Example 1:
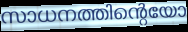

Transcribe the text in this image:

സാധനത്തിന്റെയോ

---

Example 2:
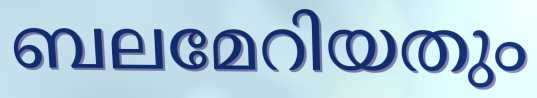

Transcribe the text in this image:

ബലമേറിയതും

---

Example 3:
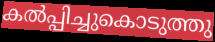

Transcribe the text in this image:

കൽപ്പിച്ചുകൊടുത്തു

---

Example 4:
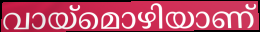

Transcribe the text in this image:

വായ്മൊഴിയാണ്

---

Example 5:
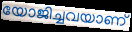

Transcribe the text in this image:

യോജിച്ചവയാണ്